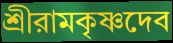
শ্রীরামকৃষ্ণদেব